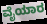
ವೈಯಾರ